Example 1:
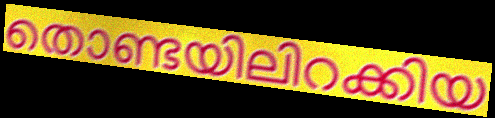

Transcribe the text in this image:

തൊണ്ടയിലിറക്കിയ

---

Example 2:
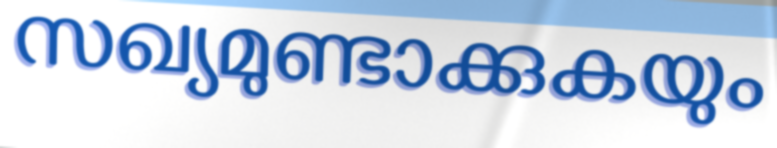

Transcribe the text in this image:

സഖ്യമുണ്ടാക്കുകയും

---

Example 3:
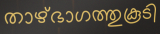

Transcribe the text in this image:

താഴ്ഭാഗത്തുകൂടി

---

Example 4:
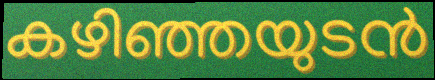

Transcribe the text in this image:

കഴിഞ്ഞയുടൻ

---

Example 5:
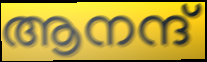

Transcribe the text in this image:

ആനന്ദ്